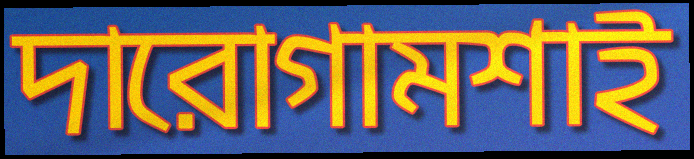
দারোগামশাই